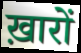
ख़ारों